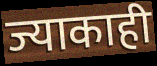
ज्याकाही